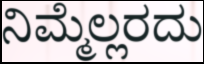
ನಿಮ್ಮೆಲ್ಲರದು